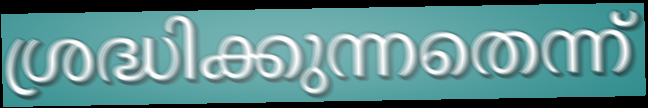
ശ്രദ്ധിക്കുന്നതെന്ന്